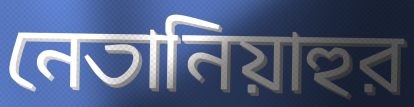
নেতানিয়াহুর